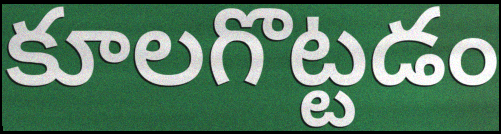
కూలగొట్టడం